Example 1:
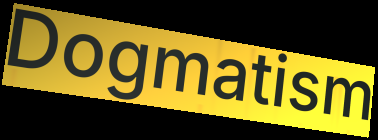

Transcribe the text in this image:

Dogmatism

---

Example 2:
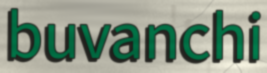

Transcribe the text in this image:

buvanchi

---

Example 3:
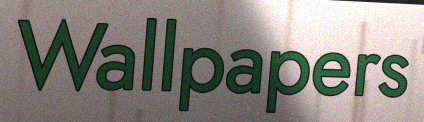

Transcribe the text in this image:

Wallpapers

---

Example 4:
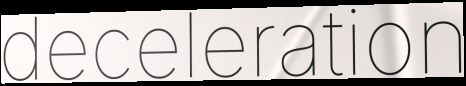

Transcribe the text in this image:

deceleration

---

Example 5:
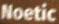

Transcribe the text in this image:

Noetic